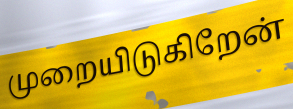
முறையிடுகிறேன்